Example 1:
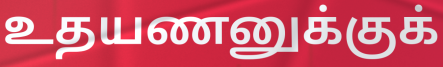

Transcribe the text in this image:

உதயணனுக்குக்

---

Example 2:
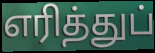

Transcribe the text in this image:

எரித்துப்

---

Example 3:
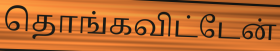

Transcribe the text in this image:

தொங்கவிட்டேன்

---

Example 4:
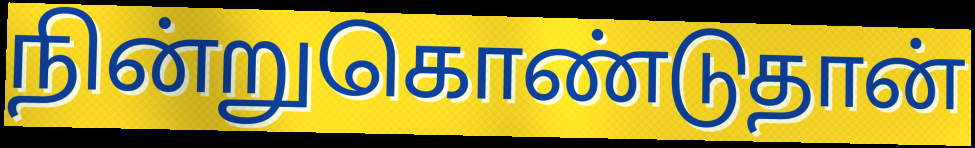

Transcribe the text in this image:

நின்றுகொண்டுதான்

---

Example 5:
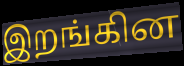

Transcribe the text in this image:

இறங்கின